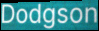
Dodgson